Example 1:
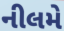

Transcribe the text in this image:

નીલમે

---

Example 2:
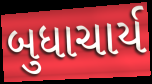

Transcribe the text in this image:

બુધાચાર્ય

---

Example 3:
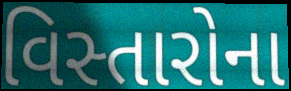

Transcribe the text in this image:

વિસ્તારોના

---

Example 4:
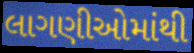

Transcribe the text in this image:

લાગણીઓમાંથી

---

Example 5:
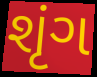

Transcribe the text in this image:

શૃંગ